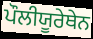
ਪੌਲੀਯੂਰੇਥੇਨ